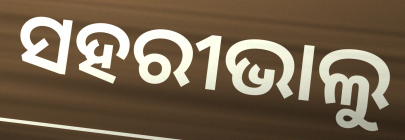
ସହରୀଭାଲୁ